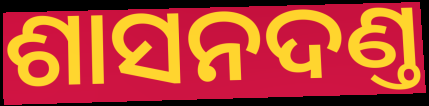
ଶାସନଦଣ୍ତ